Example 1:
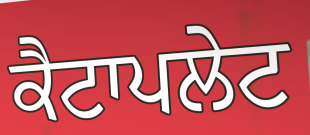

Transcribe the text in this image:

ਕੈਟਾਪਲੇਟ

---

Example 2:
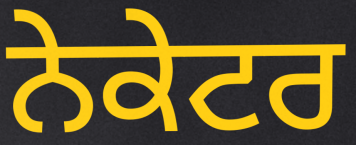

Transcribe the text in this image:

ਨੇਕੇਟਰ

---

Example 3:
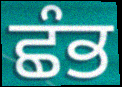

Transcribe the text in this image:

ਛੰਭ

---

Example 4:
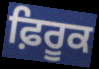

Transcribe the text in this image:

ਫ਼ਿਰੂਕ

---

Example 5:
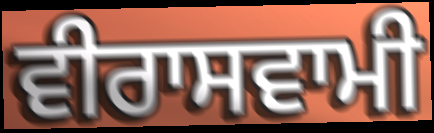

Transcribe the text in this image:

ਵੀਰਾਸਵਾਮੀ